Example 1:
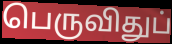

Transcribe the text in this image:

பெருவிதுப்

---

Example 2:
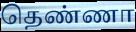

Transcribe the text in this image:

தெண்ணா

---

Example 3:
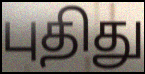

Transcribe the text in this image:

புதிது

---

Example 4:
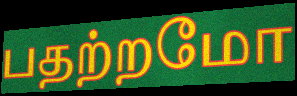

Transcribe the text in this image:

பதற்றமோ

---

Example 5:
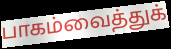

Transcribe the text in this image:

பாகம்வைத்துக்